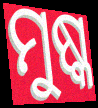
ମୁଷ୍କ